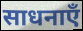
साधनाएँ